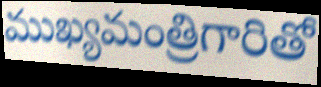
ముఖ్యమంత్రిగారితో